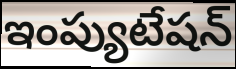
ఇంప్యుటేషన్